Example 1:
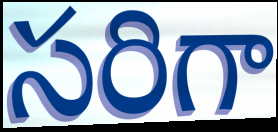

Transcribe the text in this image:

సరిగా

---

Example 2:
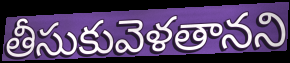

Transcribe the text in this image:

తీసుకువెళతానని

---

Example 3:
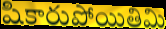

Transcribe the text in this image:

షికారుపోయితిమి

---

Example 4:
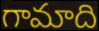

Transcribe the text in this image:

గామాది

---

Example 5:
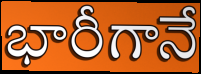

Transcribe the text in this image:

భారీగానే